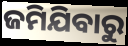
ଜମିଯିବାରୁ